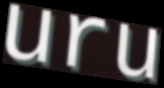
uru